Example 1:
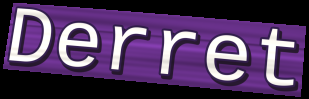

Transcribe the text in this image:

Derret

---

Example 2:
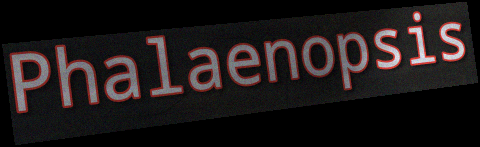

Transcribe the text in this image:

Phalaenopsis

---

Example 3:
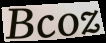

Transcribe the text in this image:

Bcoz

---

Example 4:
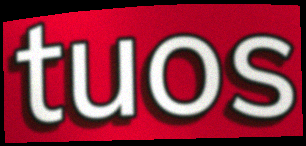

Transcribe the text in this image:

tuos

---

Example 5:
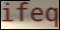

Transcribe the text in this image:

ifeq